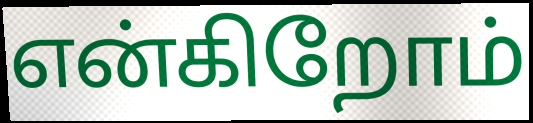
என்கிறோம்